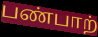
பண்பாற்